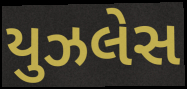
યુઝલેસ